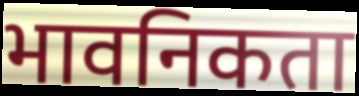
भावनिकता